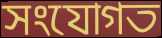
সংযোগত